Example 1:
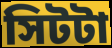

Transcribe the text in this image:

সিটটা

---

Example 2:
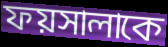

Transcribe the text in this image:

ফয়সালাকে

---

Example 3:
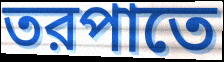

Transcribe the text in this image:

তরপাতে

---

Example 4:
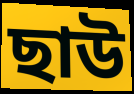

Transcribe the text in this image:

ছাউ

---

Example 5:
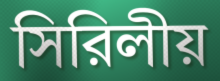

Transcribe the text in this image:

সিরিলীয়